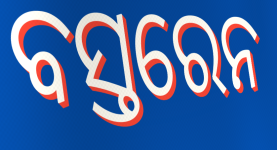
ବସ୍ତରେନ